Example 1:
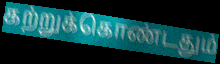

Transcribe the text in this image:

கற்றுக்கொண்டதும்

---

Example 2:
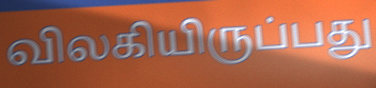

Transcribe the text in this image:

விலகியிருப்பது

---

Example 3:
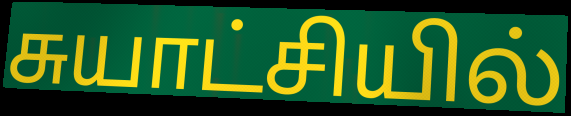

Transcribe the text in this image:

சுயாட்சியில்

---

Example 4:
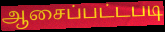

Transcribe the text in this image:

ஆசைப்பட்டபடி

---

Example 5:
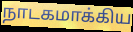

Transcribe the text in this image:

நாடகமாக்கிய